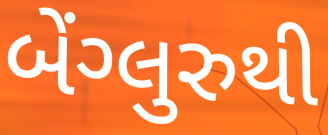
બેંગ્લુરુથી